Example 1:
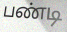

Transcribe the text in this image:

பண்டி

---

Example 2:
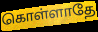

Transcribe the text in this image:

கொள்ளாதே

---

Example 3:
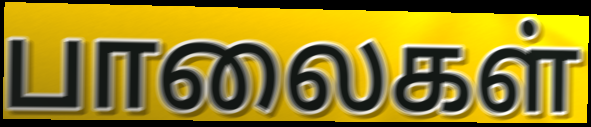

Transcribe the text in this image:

பாலைகள்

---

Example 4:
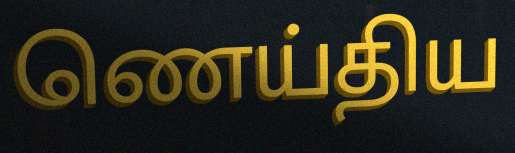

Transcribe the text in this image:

ணெய்திய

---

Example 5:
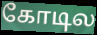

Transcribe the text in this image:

கோடில